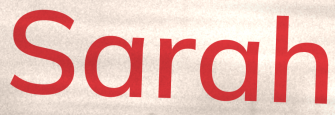
Sarah